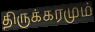
திருக்கரமும்